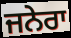
ਜਨੇਰਾ